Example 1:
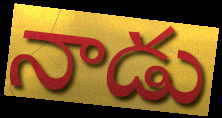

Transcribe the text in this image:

నాడు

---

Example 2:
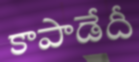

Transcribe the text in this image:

కాపాడేదీ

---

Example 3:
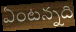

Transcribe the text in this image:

ఏంటన్నది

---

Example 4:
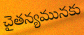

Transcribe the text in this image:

చైతన్యమునకు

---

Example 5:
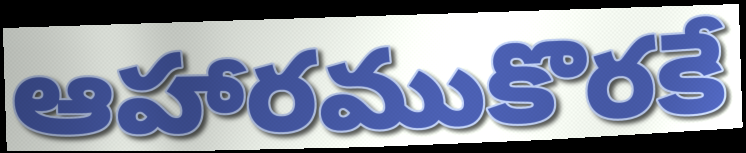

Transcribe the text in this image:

ఆహారముకొరకే